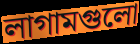
লাগামগুলো